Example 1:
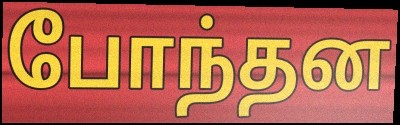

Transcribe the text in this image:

போந்தன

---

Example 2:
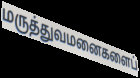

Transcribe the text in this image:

மருத்துவமனைகளைப்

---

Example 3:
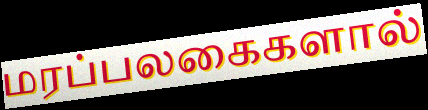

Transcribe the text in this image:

மரப்பலகைகளால்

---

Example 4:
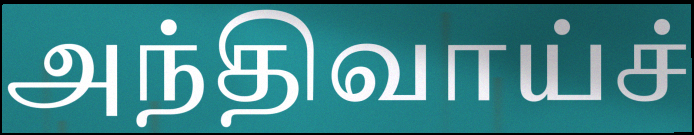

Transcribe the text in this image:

அந்திவாய்ச்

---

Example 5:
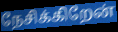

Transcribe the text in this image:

நேசிக்கிறேன்